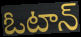
ఓటాన్